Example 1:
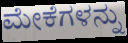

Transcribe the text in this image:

ಮೇಕೆಗಳನ್ನು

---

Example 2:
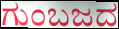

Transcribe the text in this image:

ಗುಂಬಜದ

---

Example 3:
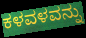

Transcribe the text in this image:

ಕಳವಳವನ್ನು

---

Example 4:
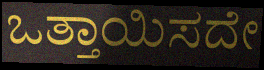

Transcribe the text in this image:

ಒತ್ತಾಯಿಸದೇ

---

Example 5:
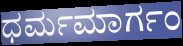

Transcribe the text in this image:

ಧರ್ಮಮಾರ್ಗಂ